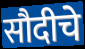
सौदीचे